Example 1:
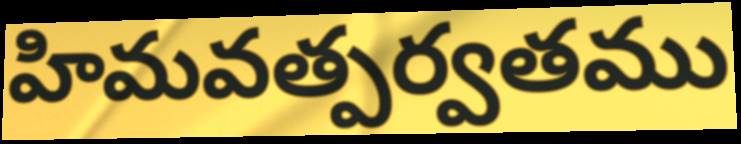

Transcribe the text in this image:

హిమవత్పర్వతము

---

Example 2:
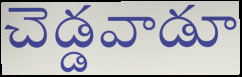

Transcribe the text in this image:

చెడ్డవాడూ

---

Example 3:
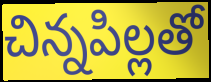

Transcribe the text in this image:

చిన్నపిల్లతో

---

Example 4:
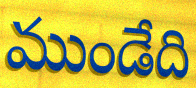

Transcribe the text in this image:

ముండేది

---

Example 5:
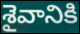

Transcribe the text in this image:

శైవానికి